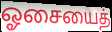
ஓசையைத்